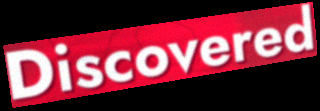
Discovered